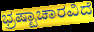
ಭ್ರಷ್ಟಾಚಾರವಿದೆ